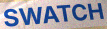
SWATCH